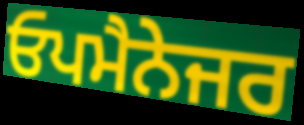
ਓਪਮੈਨੇਜਰ